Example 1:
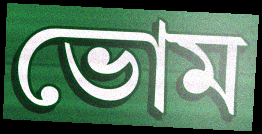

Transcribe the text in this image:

ভোম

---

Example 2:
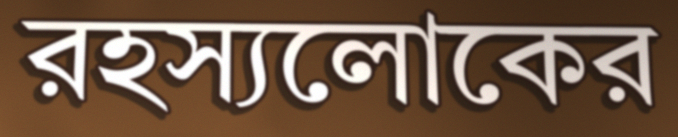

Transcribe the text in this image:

রহস্যলোকের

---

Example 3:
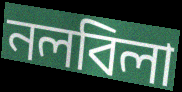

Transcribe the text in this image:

নলবিলা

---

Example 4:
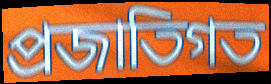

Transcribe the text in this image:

প্রজাতিগত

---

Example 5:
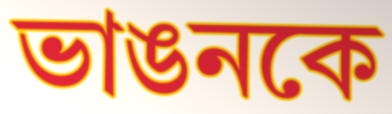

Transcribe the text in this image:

ভাঙনকে